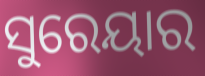
ସୁରେୟାର